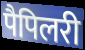
पैपिलरी